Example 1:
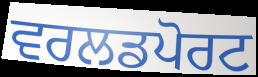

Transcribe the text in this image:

ਵਰਲਡਪੋਰਟ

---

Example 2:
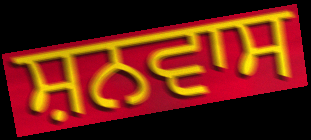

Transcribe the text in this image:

ਸ਼ਨਵਾਸ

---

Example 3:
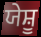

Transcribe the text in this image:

ਯੇਸ਼ੂ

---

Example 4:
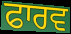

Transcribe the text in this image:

ਫਾਰਵ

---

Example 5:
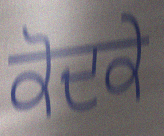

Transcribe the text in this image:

ਕੋਦਕੇ